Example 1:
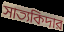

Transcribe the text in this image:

সাত্যকিদার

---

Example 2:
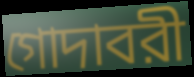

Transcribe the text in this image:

গোদাবরী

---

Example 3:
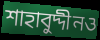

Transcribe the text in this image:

শাহাবুদ্দীনও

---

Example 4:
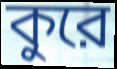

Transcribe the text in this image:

কুরে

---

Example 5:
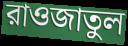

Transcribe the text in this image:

রাওজাতুল